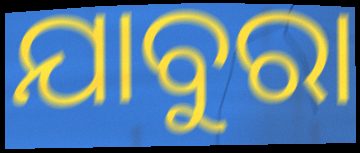
ଯାବୁରା